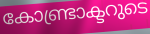
കോണ്ട്രാക്ടറുടെ